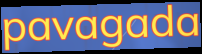
pavagada